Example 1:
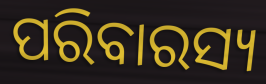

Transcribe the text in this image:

ପରିବାରସ୍ୟ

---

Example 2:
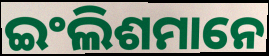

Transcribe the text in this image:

ଇଂଲିଶମାନେ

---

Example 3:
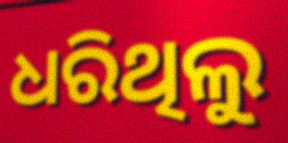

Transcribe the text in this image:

ଧରିଥିଲୁ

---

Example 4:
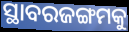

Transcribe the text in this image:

ସ୍ଥାବରଜଙ୍ଗମକୁ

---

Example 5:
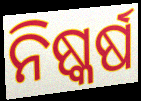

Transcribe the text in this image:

ନିଷ୍କର୍ଷ